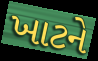
ખાટને